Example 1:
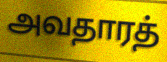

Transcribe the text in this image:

அவதாரத்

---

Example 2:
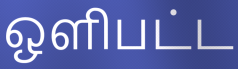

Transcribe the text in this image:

ஒளிபட்ட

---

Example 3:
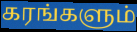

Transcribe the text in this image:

கரங்களும்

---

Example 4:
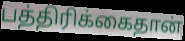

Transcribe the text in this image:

பத்திரிக்கைதான்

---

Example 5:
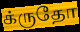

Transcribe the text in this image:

க்ருதோ